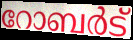
റോബർട്